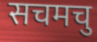
सचमचु